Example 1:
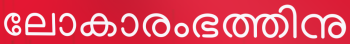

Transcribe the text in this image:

ലോകാരംഭത്തിനു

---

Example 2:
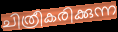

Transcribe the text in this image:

ചിത്രീകരിക്കുന്ന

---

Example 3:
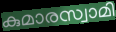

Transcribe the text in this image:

കുമാരസ്വാമി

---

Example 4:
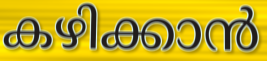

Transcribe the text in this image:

കഴിക്കാൻ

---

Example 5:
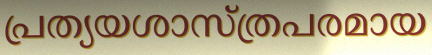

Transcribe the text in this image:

പ്രത്യയശാസ്ത്രപരമായ